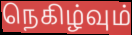
நெகிழ்வும்